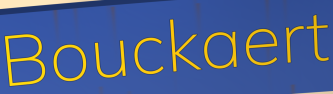
Bouckaert